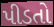
પીડતો